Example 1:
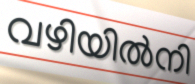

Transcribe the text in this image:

വഴിയിൽനി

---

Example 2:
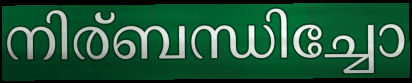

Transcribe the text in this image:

നിര്ബന്ധിച്ചോ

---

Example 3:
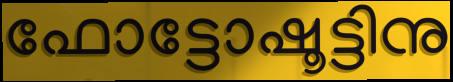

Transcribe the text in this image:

ഫോട്ടോഷൂട്ടിനു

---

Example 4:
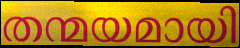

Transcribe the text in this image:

തന്മയമായി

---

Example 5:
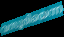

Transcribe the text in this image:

വസൂരിയെന്ന